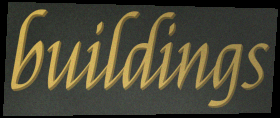
buildings